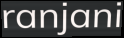
ranjani